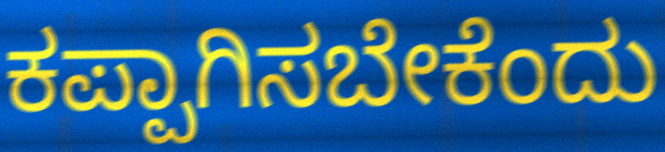
ಕಪ್ಪಾಗಿಸಬೇಕೆಂದು